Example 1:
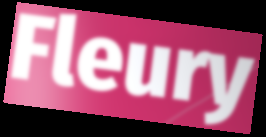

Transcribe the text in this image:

Fleury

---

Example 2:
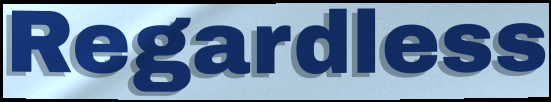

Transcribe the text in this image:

Regardless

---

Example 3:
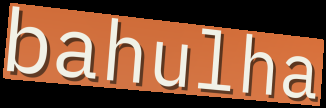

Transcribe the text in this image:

bahulha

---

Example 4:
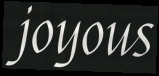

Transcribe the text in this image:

joyous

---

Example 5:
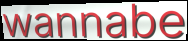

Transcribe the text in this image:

wannabe